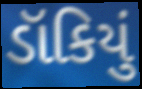
ડૉકિયું